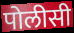
पोलीसी